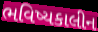
ભવિષ્યકાલીન